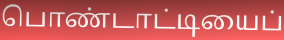
பொண்டாட்டியைப்